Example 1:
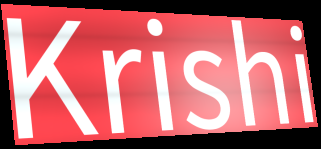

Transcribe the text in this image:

Krishi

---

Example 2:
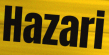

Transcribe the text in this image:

Hazari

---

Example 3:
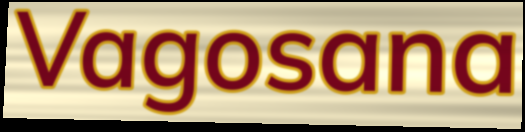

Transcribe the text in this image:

Vagosana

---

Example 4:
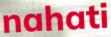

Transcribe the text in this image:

nahati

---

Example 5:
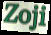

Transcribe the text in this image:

Zoji